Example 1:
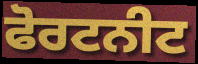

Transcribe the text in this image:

ਫੋਰਟਨੀਟ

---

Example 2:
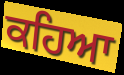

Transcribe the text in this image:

ਕਹਿਆ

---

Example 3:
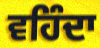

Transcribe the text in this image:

ਵਹਿੰਦਾ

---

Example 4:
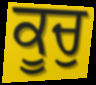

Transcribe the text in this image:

ਕੂਚੁ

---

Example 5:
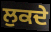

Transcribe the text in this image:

ਲੁਕਦੇ